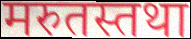
मरुतस्तथा